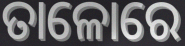
ତାଳୋରେ